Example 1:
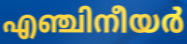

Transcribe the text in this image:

എഞ്ചിനീയർ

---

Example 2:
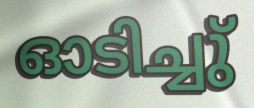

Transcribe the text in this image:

ഓടിച്ചു്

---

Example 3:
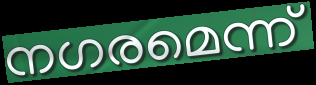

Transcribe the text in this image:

നഗരമെന്ന്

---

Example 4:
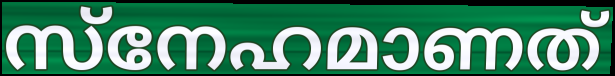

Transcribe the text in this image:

സ്നേഹമാണത്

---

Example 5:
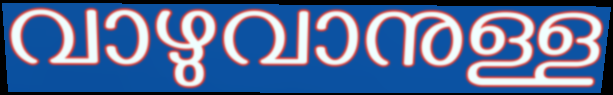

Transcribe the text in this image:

വാഴുവാനുള്ള